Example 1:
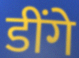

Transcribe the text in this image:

डींगे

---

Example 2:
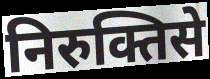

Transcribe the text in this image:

निरुक्तिसे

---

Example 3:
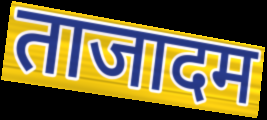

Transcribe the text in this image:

ताजादम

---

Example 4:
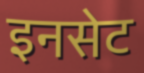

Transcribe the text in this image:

इनसेट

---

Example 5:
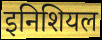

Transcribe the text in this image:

इनिशियल